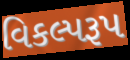
વિકલ્પરૂપ